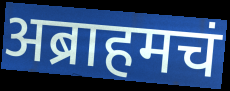
अब्राहमचं